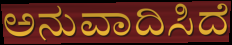
ಅನುವಾದಿಸಿದೆ